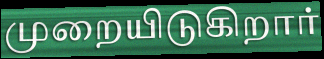
முறையிடுகிறார்